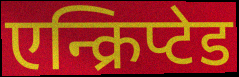
एन्क्रिप्टेड